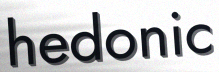
hedonic